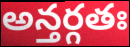
అన్తర్గతః